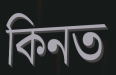
কিনত